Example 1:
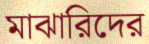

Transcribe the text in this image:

মাঝারিদের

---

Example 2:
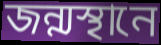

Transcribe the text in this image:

জন্মস্থানে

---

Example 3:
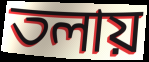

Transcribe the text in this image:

তলায়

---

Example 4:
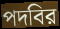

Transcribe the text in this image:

পদবির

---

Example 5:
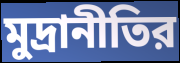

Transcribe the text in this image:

মুদ্রানীতির